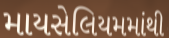
માયસેલિયમમાંથી